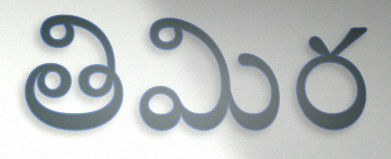
తిమిర